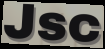
Jsc